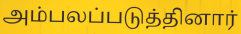
அம்பலப்படுத்தினார்